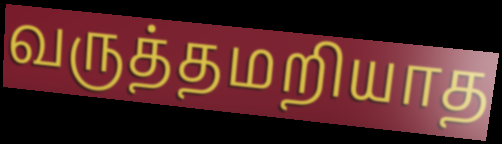
வருத்தமறியாத